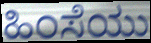
ಹಿಂಸೆಯು